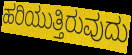
ಹರಿಯುತ್ತಿರುವುದು